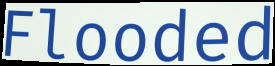
Flooded